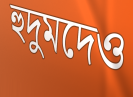
হুদুমদেও